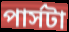
পার্সটা